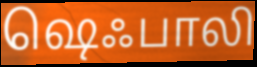
ஷெஃபாலி